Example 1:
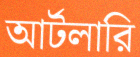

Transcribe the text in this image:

আর্টলারি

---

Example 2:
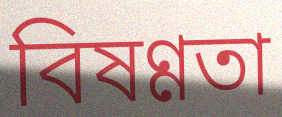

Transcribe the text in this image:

বিষণ্ণতা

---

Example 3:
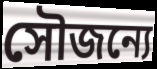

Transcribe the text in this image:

সৌজন্যে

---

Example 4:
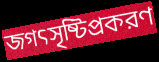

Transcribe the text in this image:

জগৎসৃষ্টিপ্রকরণ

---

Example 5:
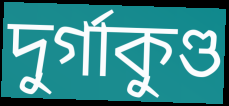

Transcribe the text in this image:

দুর্গাকুণ্ড